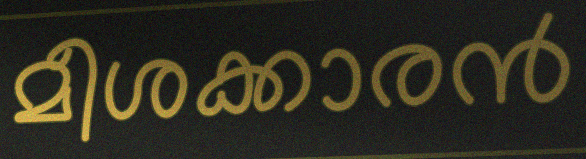
മീശക്കാരൻ